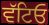
ਵੱਟਿਓ